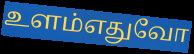
உளம்எதுவோ